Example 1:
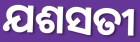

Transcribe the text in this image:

ଯଶସତୀ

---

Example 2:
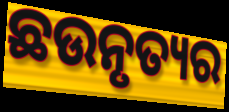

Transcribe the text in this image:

ଛଉନୃତ୍ୟର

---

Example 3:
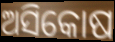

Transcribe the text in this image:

ଅସିକୋଷ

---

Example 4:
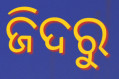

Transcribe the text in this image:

ଜିଦରୁ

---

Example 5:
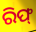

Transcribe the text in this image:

ରିଫ୍